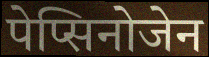
पेप्सिनोजेन